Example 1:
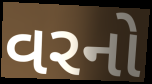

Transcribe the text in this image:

વરનો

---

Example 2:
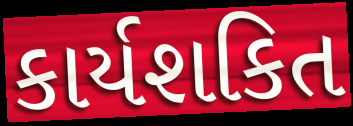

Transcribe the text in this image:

કાર્યશકિત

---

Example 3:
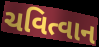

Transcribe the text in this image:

ચવિત્વાન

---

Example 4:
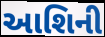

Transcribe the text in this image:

આશિની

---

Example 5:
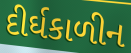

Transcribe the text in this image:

દીર્ઘકાળીન